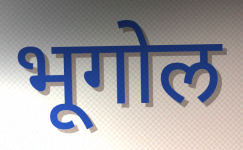
भूगोल